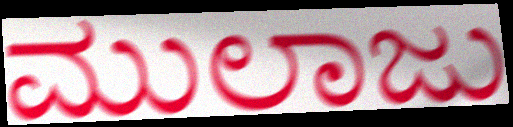
ಮುಲಾಜು